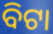
ବିଟା